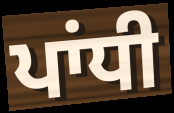
ਪਾਂਧੀ